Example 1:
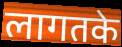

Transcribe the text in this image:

लागतके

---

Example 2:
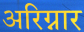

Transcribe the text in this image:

अरिग्नार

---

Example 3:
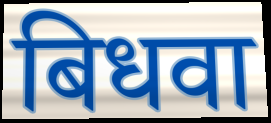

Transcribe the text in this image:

बिधवा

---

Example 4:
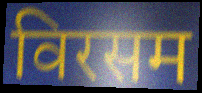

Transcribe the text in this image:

विरसम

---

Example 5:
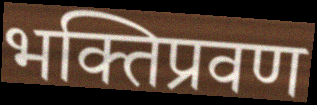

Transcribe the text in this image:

भक्तिप्रवण